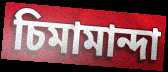
চিমামান্দা